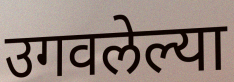
उगवलेल्या